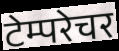
टेम्परेचर